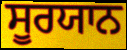
ਸੂਰਯਾਨ